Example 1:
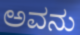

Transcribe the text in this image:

ಅವನು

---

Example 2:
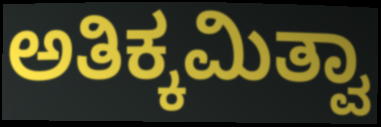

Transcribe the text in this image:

ಅತಿಕ್ಕಮಿತ್ವಾ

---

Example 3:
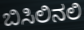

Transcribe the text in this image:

ಬಿಸಿಲಿನಲಿ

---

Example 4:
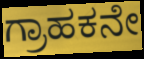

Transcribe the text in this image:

ಗ್ರಾಹಕನೇ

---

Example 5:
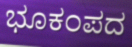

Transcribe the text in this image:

ಭೂಕಂಪದ